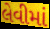
લેવીમાં